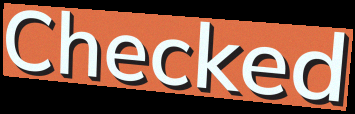
Checked